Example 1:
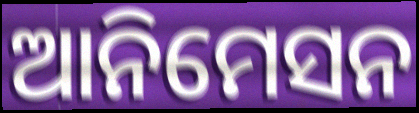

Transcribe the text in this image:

ଆନିମେସନ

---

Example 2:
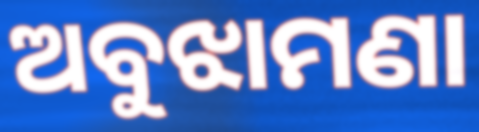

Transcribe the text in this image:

ଅବୁଝାମଣା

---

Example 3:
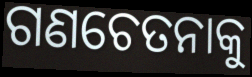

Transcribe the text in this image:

ଗଣଚେତନାକୁ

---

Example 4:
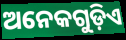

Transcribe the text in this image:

ଅନେକଗୁଡ଼ିଏ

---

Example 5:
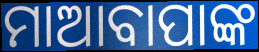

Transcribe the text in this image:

ମାଆବାପାଙ୍କ